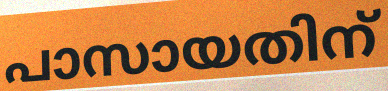
പാസായതിന്